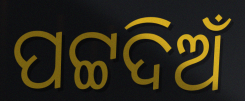
ପଟ୍ଟଦିଅଁ